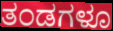
ತಂಡಗಳೂ